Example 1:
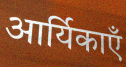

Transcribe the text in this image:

आर्यिकाएँ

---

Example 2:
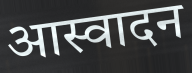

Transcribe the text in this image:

आस्वादन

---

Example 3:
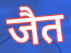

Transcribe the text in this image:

जैत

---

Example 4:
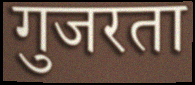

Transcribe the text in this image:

गुजरता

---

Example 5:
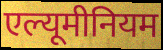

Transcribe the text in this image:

एल्यूमीनियम